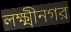
লক্ষ্মীনগর